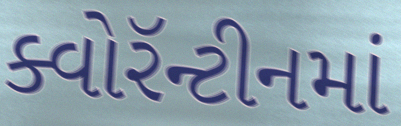
ક્વોરૅન્ટીનમાં